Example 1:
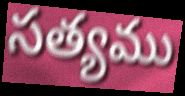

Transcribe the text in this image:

సత్యము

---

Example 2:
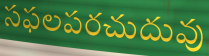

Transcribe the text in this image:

సఫలపరచుదువు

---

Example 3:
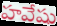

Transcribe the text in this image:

హవేషు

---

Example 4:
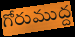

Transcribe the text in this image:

గోరుముద్ద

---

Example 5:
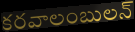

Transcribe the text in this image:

కరవాలంబులన్